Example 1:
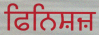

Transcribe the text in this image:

ਫਿਨਿਸ਼ਜ਼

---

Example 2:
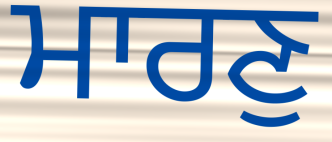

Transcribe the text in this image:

ਮਾਰਣੁ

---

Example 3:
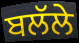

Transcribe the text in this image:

ਬਲੱਲੇ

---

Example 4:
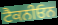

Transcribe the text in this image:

ਟੈਕਨੀਓਨ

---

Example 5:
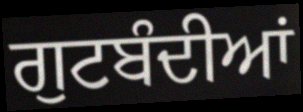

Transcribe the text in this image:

ਗੁਟਬੰਦੀਆਂ